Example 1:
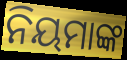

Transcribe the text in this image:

ନିୟମାଙ୍କ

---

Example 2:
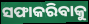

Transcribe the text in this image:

ସଫାକରିବାକୁ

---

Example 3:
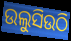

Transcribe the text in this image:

ଉଲୁସିଉଠି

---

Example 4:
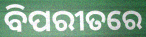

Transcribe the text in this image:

ବିପରୀତରେ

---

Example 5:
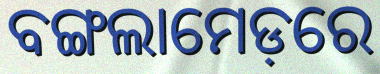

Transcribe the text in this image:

ବଙ୍ଗଲାମେଡ଼ରେ